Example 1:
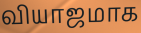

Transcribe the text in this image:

வியாஜமாக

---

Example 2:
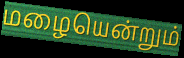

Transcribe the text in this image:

மழையென்றும்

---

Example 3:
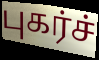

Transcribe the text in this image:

புகர்ச்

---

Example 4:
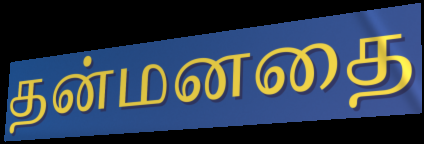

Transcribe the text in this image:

தன்மனதை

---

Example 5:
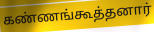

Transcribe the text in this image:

கண்ணங்கூத்தனார்